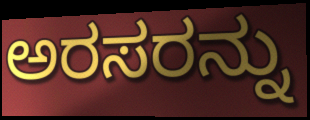
ಅರಸರನ್ನು